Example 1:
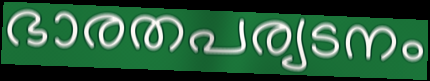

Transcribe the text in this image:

ഭാരതപര്യടനം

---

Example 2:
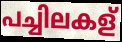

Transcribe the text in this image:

പച്ചിലകള്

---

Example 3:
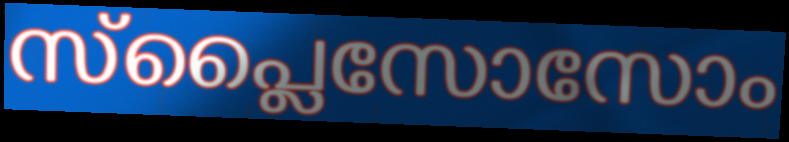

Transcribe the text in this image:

സ്പ്ലൈസോസോം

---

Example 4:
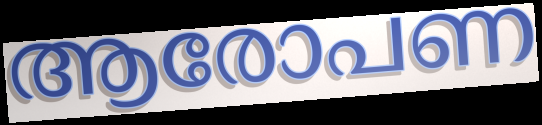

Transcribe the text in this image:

ആരോപണ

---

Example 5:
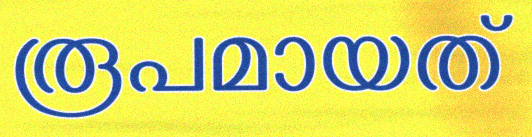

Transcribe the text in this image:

രൂപമായത്